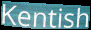
Kentish